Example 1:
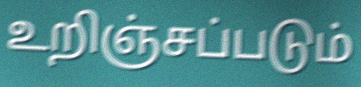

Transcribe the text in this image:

உறிஞ்சப்படும்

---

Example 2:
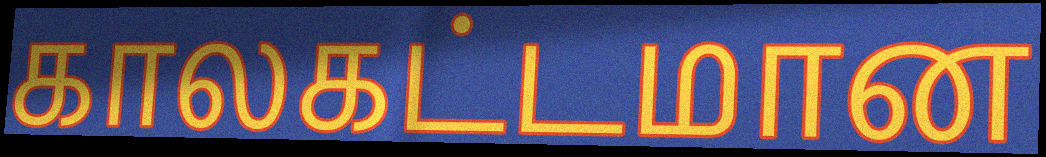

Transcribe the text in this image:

காலகட்டமான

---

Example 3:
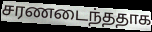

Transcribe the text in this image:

சரணடைந்ததாக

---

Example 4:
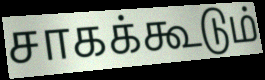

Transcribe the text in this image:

சாகக்கூடும்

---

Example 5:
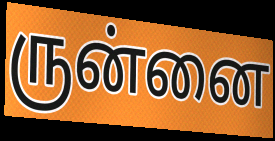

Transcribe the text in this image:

ருன்னை